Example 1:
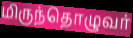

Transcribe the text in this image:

மிருந்தொழுவர்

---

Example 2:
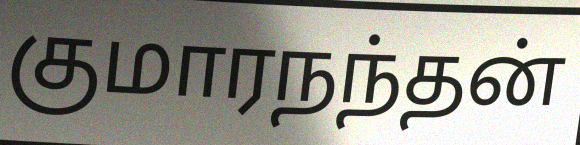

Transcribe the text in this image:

குமாரநந்தன்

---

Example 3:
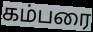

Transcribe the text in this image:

கம்பரை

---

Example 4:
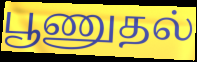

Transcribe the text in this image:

பூணுதல்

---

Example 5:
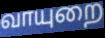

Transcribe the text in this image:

வாயுறை